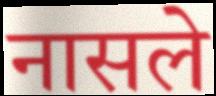
नासले